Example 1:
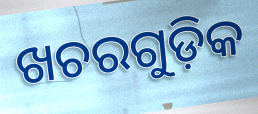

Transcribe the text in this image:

ଖଚରଗୁଡ଼ିକ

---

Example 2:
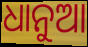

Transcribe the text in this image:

ଧାନୁଆ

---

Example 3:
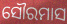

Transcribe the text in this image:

ସୌରମାସ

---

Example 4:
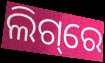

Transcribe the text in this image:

ଲିଗ୍‌ରେ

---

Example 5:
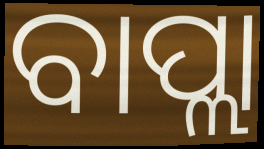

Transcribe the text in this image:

ବାପ୍ଲା